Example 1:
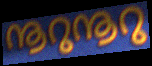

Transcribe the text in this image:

നൂറുനൂറു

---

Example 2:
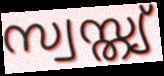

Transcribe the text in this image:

സ്വസ്ത്യ്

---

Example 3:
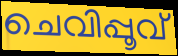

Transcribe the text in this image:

ചെവിപ്പൂവ്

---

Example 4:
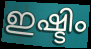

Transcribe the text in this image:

ഇഷ്ടിം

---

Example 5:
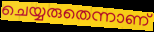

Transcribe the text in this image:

ചെയ്യരുതെന്നാണ്